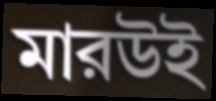
মারউই